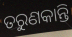
ତରୁଣକାନ୍ତି